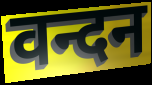
वन्दन